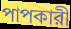
পাপকারী